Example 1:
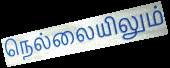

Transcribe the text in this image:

நெல்லையிலும்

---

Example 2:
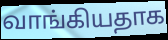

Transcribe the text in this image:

வாங்கியதாக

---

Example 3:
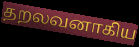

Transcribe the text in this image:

தறலவனாகிய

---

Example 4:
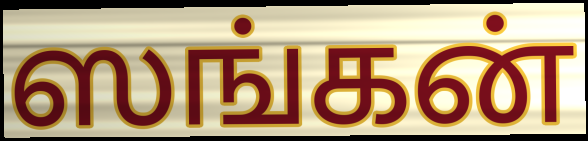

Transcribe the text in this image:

ஸங்கன்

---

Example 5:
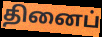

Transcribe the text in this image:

தினைப்